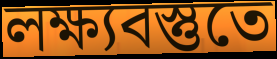
লক্ষ্যবস্তুতে